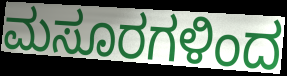
ಮಸೂರಗಳಿಂದ